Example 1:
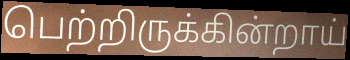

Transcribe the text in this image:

பெற்றிருக்கின்றாய்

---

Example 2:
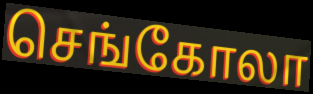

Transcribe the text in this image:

செங்கோலா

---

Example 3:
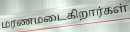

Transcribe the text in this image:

மரணமடைகிறார்கள்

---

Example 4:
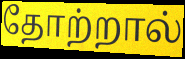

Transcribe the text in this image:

தோற்றால்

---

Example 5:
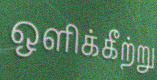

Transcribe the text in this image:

ஒளிக்கீற்று